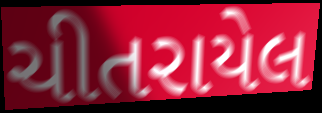
ચીતરાયેલ